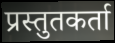
प्रस्तुतकर्ता